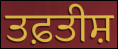
ਤਫ਼ਤੀਸ਼